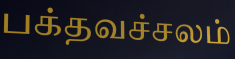
பக்தவச்சலம்